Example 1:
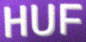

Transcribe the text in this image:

HUF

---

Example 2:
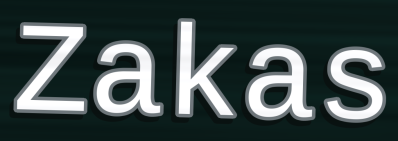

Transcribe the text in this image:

Zakas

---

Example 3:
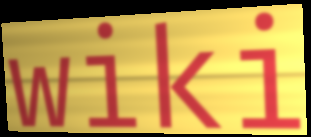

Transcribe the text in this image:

wiki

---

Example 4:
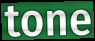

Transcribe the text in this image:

tone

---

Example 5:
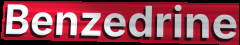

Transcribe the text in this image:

Benzedrine